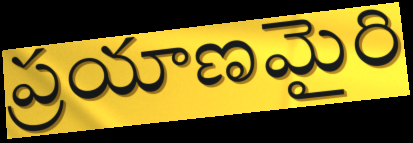
ప్రయాణమైరి